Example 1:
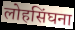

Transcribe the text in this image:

लोहसिंघना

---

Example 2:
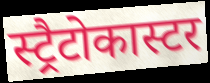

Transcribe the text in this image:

स्ट्रैटोकास्टर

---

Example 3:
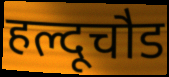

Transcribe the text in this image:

हल्दूचौड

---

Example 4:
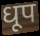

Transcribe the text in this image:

धूप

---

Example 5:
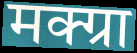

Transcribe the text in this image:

मक्ग्रा